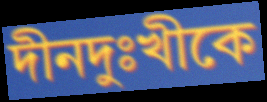
দীনদুঃখীকে